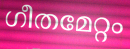
ഗീതമേറ്റം